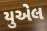
યુએલ